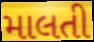
માલતી